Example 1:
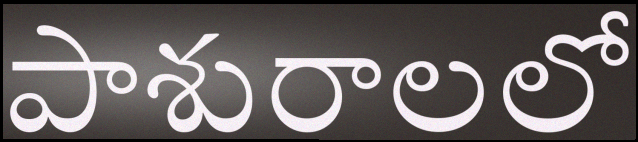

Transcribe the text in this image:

పాశురాలలో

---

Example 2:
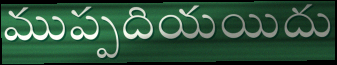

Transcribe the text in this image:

ముప్పదియయిదు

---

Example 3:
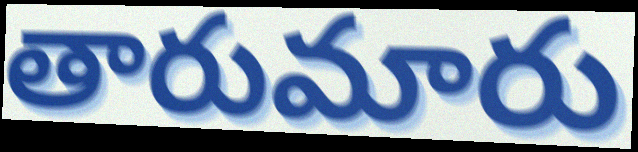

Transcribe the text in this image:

తారుమారు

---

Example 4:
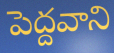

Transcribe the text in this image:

పెద్దవాని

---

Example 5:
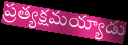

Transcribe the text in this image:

ప్రత్యక్షమయ్యాడు